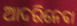
ଆଦରିନେବା